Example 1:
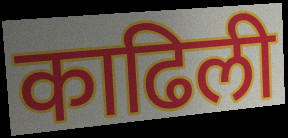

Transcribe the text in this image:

काढिली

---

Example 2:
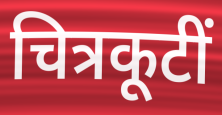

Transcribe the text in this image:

चित्रकूटीं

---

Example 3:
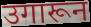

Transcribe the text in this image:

उगारून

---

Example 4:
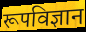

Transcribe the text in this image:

रूपविज्ञान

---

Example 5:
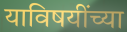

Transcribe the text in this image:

याविषयींच्या